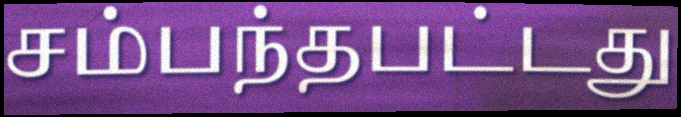
சம்பந்தபட்டது